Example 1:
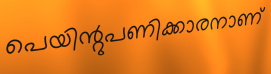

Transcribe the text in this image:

പെയിന്റുപണിക്കാരനാണ്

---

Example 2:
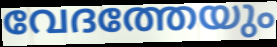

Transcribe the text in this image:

വേദത്തേയും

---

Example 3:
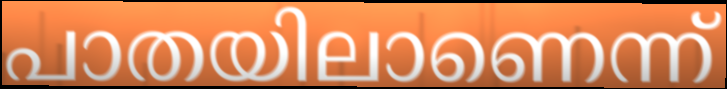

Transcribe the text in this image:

പാതയിലാണെന്ന്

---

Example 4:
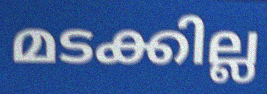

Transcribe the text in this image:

മടക്കില്ല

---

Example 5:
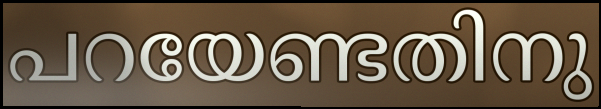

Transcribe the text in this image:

പറയേണ്ടതിനു